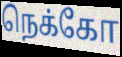
நெக்கோ